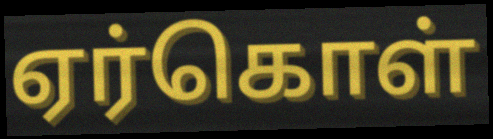
ஏர்கொள்